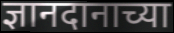
ज्ञानदानाच्या